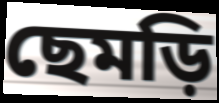
ছেমড়ি